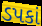
ડપકાં